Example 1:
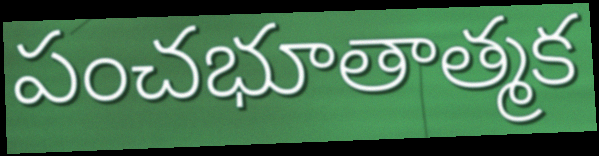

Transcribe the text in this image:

పంచభూతాత్మక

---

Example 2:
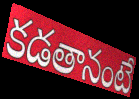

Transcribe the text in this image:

కడతానంటే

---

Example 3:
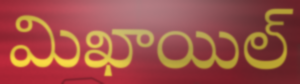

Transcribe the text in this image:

మిఖాయిల్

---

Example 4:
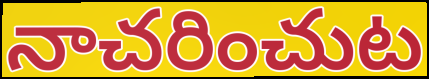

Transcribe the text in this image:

నాచరించుట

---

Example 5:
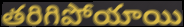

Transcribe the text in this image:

తరిగిపోయాయి